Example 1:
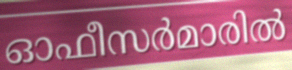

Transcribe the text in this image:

ഓഫീസർമാരിൽ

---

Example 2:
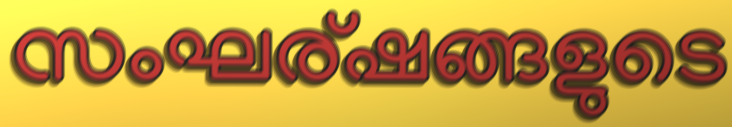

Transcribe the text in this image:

സംഘര്ഷങ്ങളുടെ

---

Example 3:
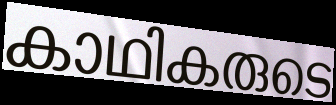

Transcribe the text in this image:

കാഥികരുടെ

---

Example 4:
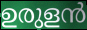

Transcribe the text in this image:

ഉരുളൻ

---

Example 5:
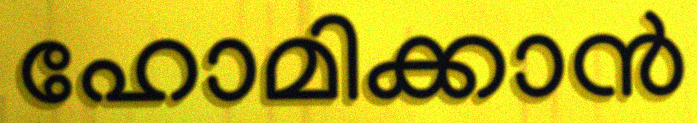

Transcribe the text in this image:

ഹോമിക്കാൻ